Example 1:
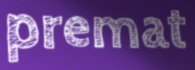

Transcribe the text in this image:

premat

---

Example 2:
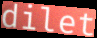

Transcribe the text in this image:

dilet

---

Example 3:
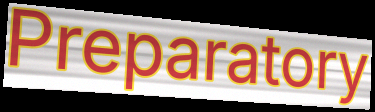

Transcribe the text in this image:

Preparatory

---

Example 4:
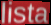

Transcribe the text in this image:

lista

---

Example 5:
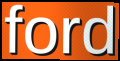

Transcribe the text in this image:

ford